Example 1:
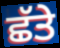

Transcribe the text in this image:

ਛੱਤੇ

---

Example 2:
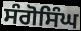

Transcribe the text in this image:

ਸੰਗੋਸਿੰਘ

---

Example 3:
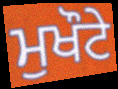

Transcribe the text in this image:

ਮੁਖੌਟੇ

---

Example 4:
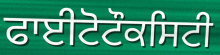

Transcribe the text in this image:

ਫਾਈਟੋਟੌਕਸਿਟੀ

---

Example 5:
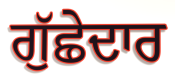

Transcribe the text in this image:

ਗੁੱਛੇਦਾਰ